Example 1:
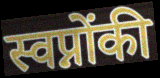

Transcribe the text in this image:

स्वप्नोंकी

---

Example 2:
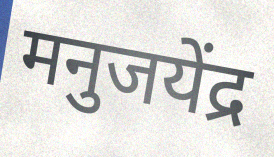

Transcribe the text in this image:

मनुजयेंद्र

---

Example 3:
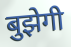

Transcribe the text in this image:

बुझेगी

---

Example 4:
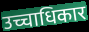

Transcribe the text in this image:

उच्चाधिकार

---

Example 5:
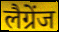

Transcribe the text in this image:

लैग्रेंज